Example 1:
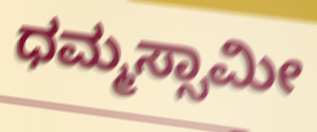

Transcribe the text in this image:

ಧಮ್ಮಸ್ಸಾಮೀ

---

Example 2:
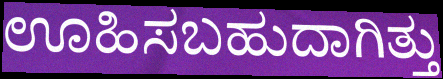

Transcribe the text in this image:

ಊಹಿಸಬಹುದಾಗಿತ್ತು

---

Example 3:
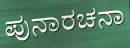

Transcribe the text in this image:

ಪುನಾರಚನಾ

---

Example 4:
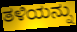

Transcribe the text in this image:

ತಳಿಯನ್ನು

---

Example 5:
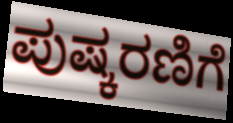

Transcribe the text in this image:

ಪುಷ್ಕರಣಿಗೆ